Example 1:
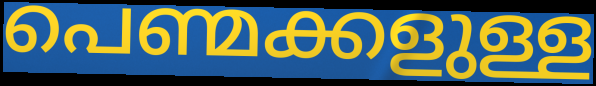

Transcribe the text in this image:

പെണ്മക്കളുള്ള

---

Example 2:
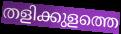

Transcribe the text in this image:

തളിക്കുളത്തെ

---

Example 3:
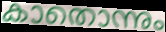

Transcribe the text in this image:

കാതൊന്നും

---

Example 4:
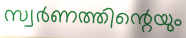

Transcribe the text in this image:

സ്വർണത്തിന്റെയും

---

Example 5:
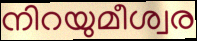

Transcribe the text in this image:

നിറയുമീശ്വര